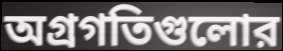
অগ্রগতিগুলোর